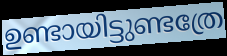
ഉണ്ടായിട്ടുണ്ടത്രേ